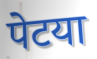
पेटया